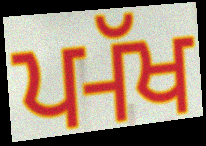
ਪ੍ਮੱਖ